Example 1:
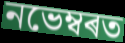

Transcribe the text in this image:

নভেম্বৰত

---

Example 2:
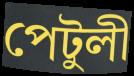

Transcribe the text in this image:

পেটুলী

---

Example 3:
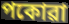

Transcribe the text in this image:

পকোৱা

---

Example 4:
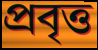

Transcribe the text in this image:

প্ৰবৃত্ত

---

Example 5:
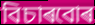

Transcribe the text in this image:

বিচাৰবোৰ